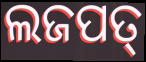
ଲଜପତ୍